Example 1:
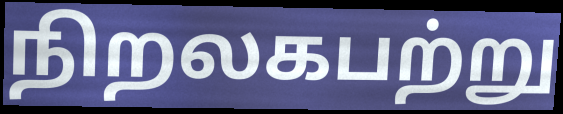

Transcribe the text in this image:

நிறலகபற்று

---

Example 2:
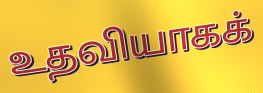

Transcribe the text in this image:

உதவியாகக்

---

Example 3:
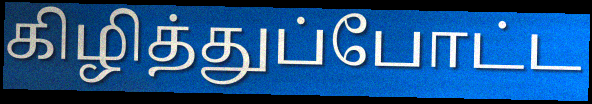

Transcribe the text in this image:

கிழித்துப்போட்ட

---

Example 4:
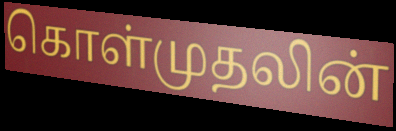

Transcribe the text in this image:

கொள்முதலின்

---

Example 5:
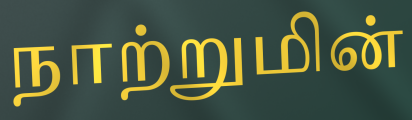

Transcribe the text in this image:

நாற்றுமின்